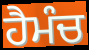
ਹੈਮੰਚ